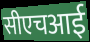
सीएचआई